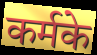
कर्मके